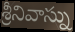
శ్రీనివాస్ను